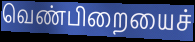
வெண்பிறையைச்